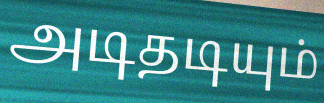
அடிதடியும்